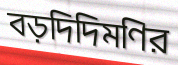
বড়দিদিমণির